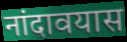
नांदावयास